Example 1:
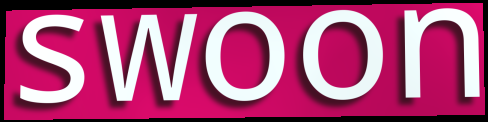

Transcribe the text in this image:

swoon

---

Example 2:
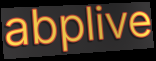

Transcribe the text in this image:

abplive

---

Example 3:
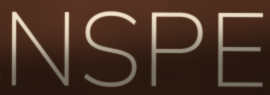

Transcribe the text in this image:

NSPE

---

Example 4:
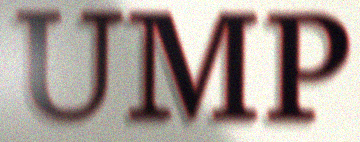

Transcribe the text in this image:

UMP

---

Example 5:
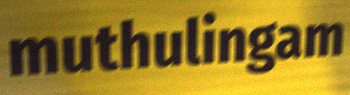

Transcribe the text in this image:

muthulingam